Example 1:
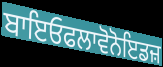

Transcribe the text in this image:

ਬਾਇਓਫਲਾਵੋਨੋਇਡਜ਼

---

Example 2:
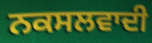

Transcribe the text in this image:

ਨਕਸਲਵਾਦੀ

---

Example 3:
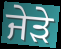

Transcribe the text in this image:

ਜੇੜੇ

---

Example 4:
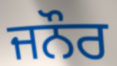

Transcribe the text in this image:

ਜਨੌਰ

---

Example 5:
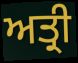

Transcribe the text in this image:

ਅਤ੍ਰੀ